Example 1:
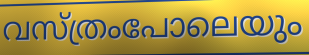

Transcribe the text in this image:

വസ്ത്രംപോലെയും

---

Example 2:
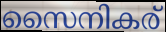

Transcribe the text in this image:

സൈനികര്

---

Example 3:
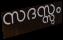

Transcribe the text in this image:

സദസ്സും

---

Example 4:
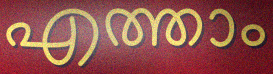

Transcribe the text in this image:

എത്താം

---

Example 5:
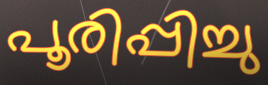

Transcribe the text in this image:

പൂരിപ്പിച്ചു